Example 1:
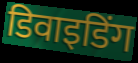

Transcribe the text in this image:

डिवाइडिंग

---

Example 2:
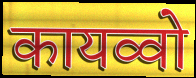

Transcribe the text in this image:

कायव्वो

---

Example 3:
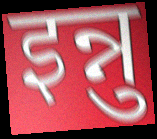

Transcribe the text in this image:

इन्नु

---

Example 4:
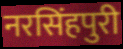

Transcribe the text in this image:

नरसिंहपुरी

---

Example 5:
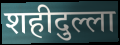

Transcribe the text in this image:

शहीदुल्ला